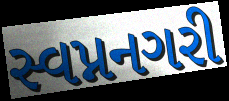
સ્વપ્નનગરી